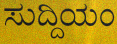
ಸುದ್ದಿಯಂ